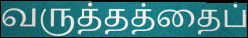
வருத்தத்தைப்